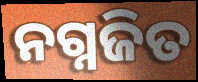
ନଗ୍ନଜିତ